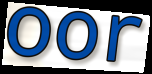
oor